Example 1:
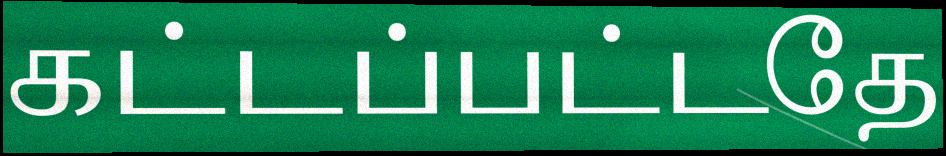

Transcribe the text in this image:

கட்டப்பட்டதே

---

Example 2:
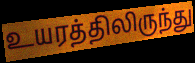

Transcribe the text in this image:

உயரத்திலிருந்து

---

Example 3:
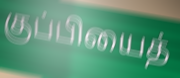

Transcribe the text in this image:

குப்பியைத்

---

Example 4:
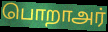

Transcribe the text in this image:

பொறாஅர்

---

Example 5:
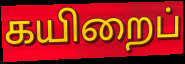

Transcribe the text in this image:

கயிறைப்